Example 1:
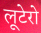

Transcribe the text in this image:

लूटेरो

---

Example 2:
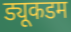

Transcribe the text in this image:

ड्यूकडम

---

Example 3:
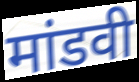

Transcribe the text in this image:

मांडवी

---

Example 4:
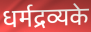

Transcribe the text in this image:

धर्मद्रव्यके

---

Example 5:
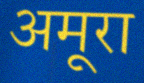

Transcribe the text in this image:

अमूरा